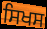
ਸਿਖਸ